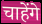
चाहेंगे